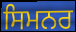
ਸਿਮਨਰ